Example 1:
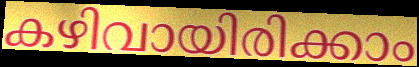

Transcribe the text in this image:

കഴിവായിരിക്കാം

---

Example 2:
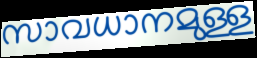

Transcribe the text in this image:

സാവധാനമുള്ള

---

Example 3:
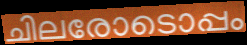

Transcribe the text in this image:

ചിലരോടൊപ്പം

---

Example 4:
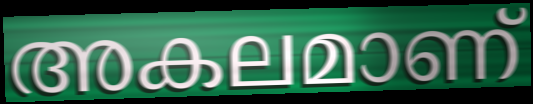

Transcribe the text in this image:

അകലമാണ്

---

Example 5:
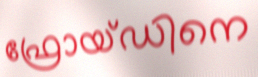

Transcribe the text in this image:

ഫ്രോയ്ഡിനെ